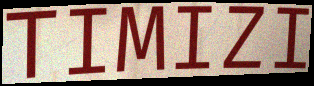
TIMIZI